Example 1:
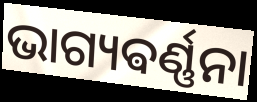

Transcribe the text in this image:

ଭାଗ୍ୟଵର୍ଣ୍ଣନା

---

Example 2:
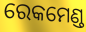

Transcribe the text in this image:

ରେକମେଣ୍ଡ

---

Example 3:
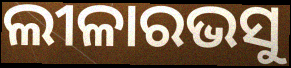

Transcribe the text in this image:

ଲୀଳାରଭସୁ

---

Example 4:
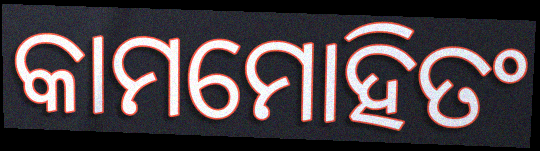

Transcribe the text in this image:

କାମମୋହିତଂ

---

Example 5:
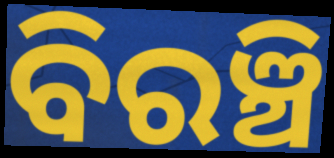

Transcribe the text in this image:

ବିରଞ୍ଚି